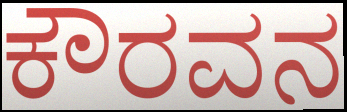
ಕೌರವನ